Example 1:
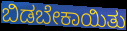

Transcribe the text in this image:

ಬಿಡಬೇಕಾಯಿತು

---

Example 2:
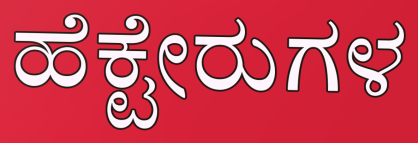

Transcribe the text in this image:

ಹೆಕ್ಟೇರುಗಳ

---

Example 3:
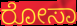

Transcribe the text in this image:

ರೋಸಾ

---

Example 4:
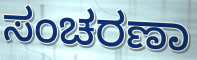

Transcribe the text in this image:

ಸಂಚರಣಾ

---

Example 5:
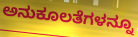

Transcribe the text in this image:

ಅನುಕೂಲತೆಗಳನ್ನೂ